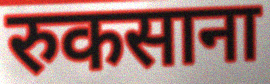
रुकसाना